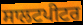
ਸਾਲਟਪੀਟਰ